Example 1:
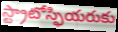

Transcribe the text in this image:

స్ట్రాటోస్ఫియరుకు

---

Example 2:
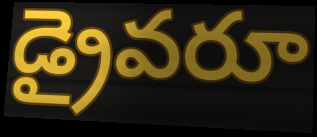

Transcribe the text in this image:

డ్రైవరూ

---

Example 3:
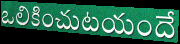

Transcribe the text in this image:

ఒలికించుటయందే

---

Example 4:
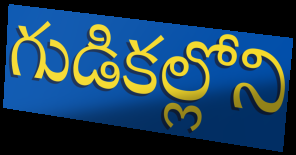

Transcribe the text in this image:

గుడికల్లోని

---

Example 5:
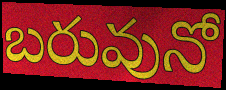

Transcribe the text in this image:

బరువునో